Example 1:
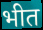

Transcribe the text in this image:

भीत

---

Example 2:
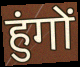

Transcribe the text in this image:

हुंगों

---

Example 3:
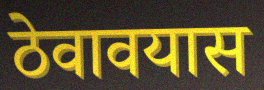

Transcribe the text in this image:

ठेवावयास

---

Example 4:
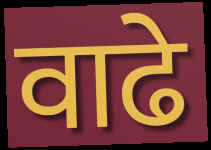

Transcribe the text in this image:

वाढे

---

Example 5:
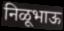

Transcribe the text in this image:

निळूभाऊ